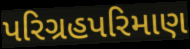
પરિગ્રહપરિમાણ